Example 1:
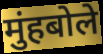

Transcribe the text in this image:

मुंहबोले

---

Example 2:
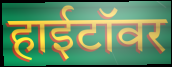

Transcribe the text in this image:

हाईटॉवर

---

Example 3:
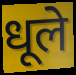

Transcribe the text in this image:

धूले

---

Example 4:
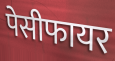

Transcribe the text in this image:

पेसीफायर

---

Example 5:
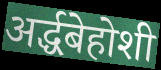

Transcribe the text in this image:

अर्द्धबेहोशी